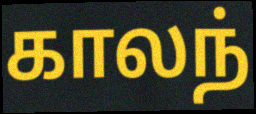
காலந்